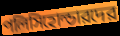
পলিসিহোল্ডারদের